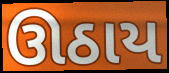
ઊઠાય